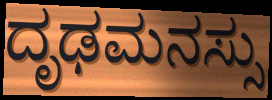
ದೃಢಮನಸ್ಸು